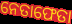
ନେତାଫେତା